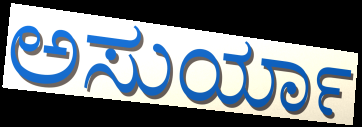
ಅಸುರ್ಯಾ